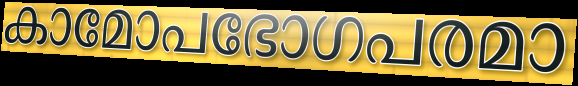
കാമോപഭോഗപരമാ